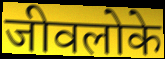
जीवलोके